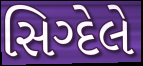
સિગ્દેલે